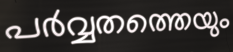
പർവ്വതത്തെയും